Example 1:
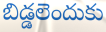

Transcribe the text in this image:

బిడ్డలెందుకు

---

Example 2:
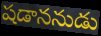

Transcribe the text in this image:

షడాననుడు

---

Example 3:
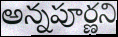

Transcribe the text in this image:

అన్నపూర్ణని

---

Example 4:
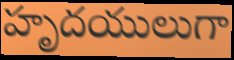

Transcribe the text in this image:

హృదయులుగా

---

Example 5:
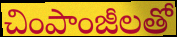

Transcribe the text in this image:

చింపాంజీలతో